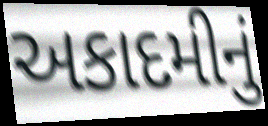
અકાદમીનું